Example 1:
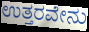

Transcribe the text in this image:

ಉತ್ತರವೇನು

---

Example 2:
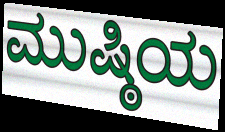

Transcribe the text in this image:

ಮುಷ್ಠಿಯ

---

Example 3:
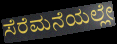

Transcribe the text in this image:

ಸೆರೆಮನೆಯಲ್ಲೇ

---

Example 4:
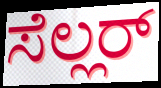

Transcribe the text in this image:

ಸೆಲ್ಲರ್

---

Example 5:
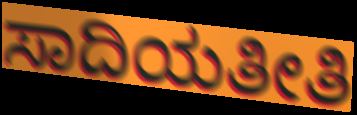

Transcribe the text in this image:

ಸಾದಿಯತೀತಿ